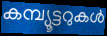
കമ്പ്യൂട്ടറുകൾ